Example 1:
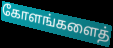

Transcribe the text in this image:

கோளங்களைத்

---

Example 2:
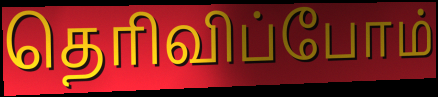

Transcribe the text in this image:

தெரிவிப்போம்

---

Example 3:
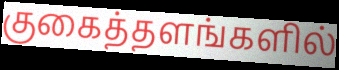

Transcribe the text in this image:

குகைத்தளங்களில்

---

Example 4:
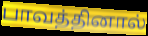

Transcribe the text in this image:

பாவத்தினால்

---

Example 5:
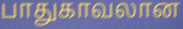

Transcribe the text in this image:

பாதுகாவலான